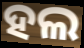
ହଲ